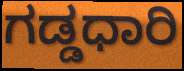
ಗಡ್ಡಧಾರಿ